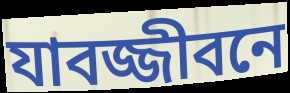
যাবজ্জীবনে